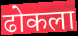
ढोकला